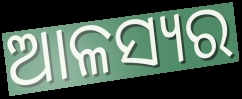
ଆଳସ୍ୟର